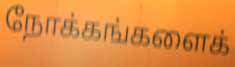
நோக்கங்களைக்